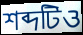
শব্দটিও